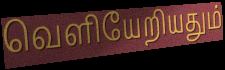
வெளியேறியதும்